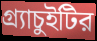
গ্র্যাচুইটির